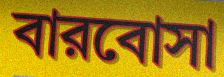
বারবোসা